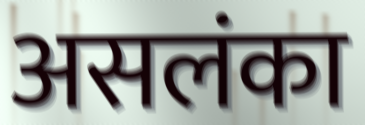
असलंका